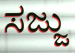
ಸಜ್ಜು